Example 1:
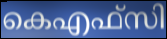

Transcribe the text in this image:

കെഎഫ്സി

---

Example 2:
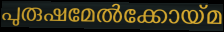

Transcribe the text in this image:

പുരുഷമേൽക്കോയ്മ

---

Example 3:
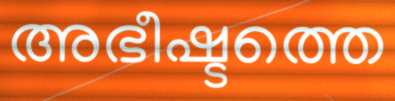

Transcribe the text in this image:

അഭീഷ്ടത്തെ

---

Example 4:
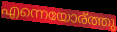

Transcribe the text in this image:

എന്നെയോര്ത്തു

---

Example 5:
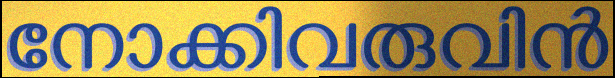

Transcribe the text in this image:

നോക്കിവരുവിൻ